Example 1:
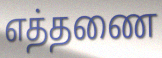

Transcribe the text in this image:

எத்தணை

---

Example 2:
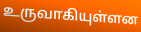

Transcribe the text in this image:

உருவாகியுள்ளன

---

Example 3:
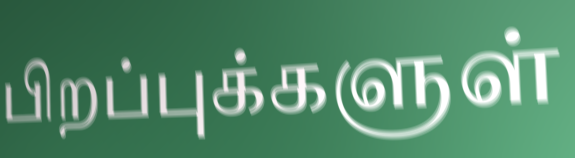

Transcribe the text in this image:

பிறப்புக்களுள்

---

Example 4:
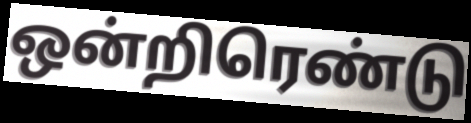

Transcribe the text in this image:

ஒன்றிரெண்டு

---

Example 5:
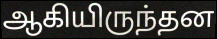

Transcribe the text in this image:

ஆகியிருந்தன